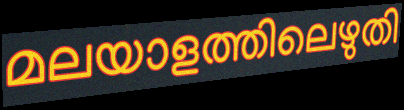
മലയാളത്തിലെഴുതി